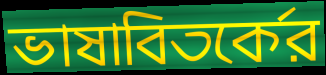
ভাষাবিতর্কের